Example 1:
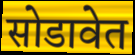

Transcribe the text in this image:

सोडावेत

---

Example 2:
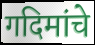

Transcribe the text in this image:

गदिमांचे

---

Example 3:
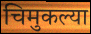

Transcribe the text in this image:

चिमुकल्या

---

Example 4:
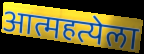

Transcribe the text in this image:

आत्महत्येला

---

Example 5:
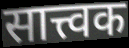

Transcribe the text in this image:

सात्त्वक